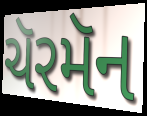
ચૅરમૅન